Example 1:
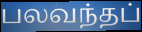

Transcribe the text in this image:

பலவந்தப்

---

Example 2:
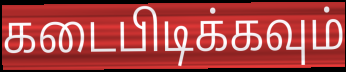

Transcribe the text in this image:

கடைபிடிக்கவும்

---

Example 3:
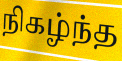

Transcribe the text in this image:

நிகழ்ந்த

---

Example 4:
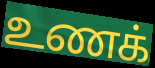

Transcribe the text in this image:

உணக்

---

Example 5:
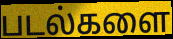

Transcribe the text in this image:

படல்களை